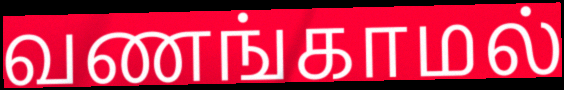
வணங்காமல்